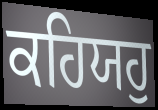
ਕਹਿਯਹੁ